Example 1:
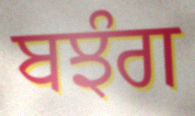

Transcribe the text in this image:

ਬਝੰਗ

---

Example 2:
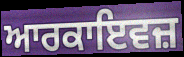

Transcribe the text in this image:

ਆਰਕਾਇਵਜ਼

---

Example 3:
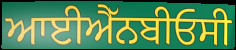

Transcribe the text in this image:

ਆਈਐੱਨਬੀਓਸੀ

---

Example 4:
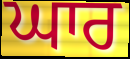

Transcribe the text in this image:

ਘਾਰ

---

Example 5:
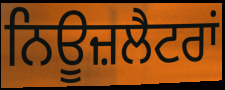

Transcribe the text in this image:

ਨਿਊਜ਼ਲੈਟਰਾਂ